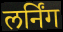
लर्निंग